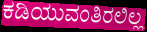
ಕಡಿಯುವಂತಿರಲಿಲ್ಲ